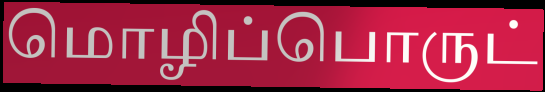
மொழிப்பொருட்